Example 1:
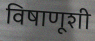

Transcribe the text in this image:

विषाणूशी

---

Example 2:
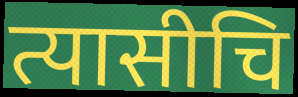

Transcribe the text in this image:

त्यासीचि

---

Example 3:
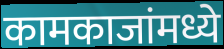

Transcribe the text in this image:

कामकाजांमध्ये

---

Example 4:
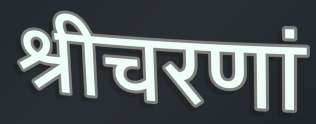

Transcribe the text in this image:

श्रीचरणां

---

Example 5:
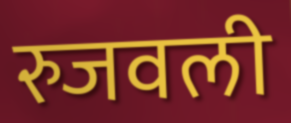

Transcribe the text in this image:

रुजवली